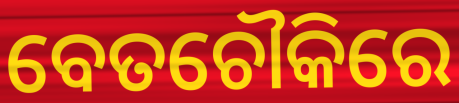
ବେତଚୌକିରେ